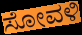
ಸೋವಳಿ